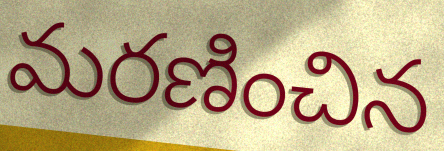
మరణించిన